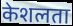
केशलता